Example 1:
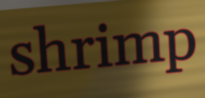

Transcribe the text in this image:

shrimp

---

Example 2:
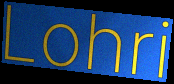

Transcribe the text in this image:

Lohri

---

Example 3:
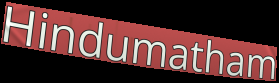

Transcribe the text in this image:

Hindumatham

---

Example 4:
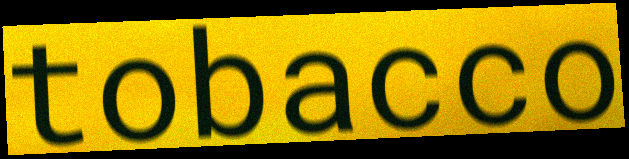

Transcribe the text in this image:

tobacco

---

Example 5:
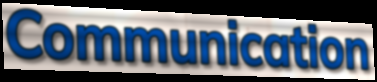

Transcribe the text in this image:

Communication